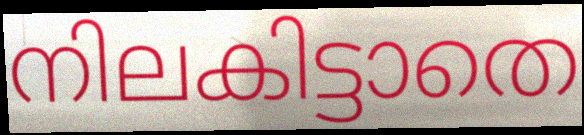
നിലകിട്ടാതെ